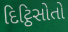
દિટ્ઠિસોતો